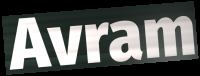
Avram